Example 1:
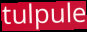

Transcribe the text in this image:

tulpule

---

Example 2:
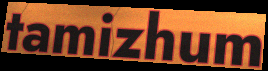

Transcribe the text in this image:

tamizhum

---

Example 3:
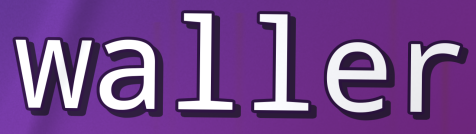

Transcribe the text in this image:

waller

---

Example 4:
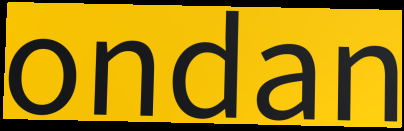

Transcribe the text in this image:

ondan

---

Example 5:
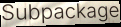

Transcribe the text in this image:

Subpackage